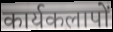
कार्यकलापों